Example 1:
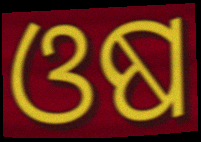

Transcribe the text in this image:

ଓଷ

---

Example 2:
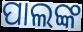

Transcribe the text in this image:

ପାଲଙ୍କ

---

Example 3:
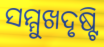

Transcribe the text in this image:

ସମ୍ମୁଖଦୃଷ୍ଟି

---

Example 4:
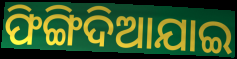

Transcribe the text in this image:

ଫିଙ୍ଗିଦିଆଯାଇ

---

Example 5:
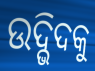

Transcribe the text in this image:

ଉଦ୍ଭିଦକୁ